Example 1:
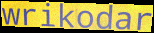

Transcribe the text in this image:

wrikodar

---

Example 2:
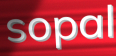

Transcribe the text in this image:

sopal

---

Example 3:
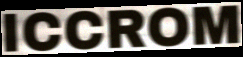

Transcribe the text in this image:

ICCROM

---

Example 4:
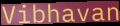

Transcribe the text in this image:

Vibhavan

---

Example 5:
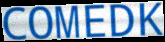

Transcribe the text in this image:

COMEDK